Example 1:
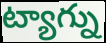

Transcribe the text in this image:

ట్యాగ్ను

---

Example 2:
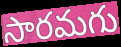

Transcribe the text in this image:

సారమగు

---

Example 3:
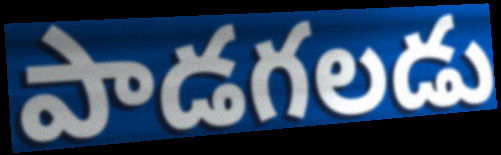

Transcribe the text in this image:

పాడగలడు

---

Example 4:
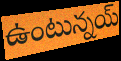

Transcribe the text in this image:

ఉంటున్నయ్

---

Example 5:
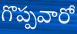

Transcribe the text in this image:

గొప్పవారో